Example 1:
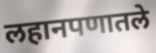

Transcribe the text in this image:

लहानपणातले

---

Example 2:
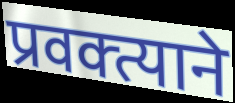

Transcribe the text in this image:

प्रवक्‍त्याने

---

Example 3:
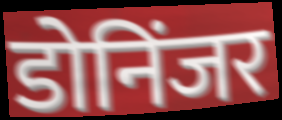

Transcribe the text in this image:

डोनिंजर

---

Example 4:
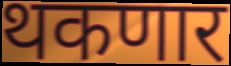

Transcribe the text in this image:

थकणार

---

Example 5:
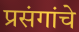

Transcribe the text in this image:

प्रसंगांचे